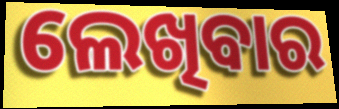
ଲେଖିବାର